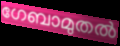
ഗേബാമുതൽ